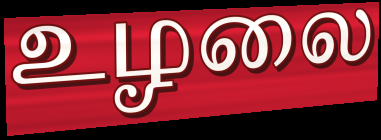
உழலை